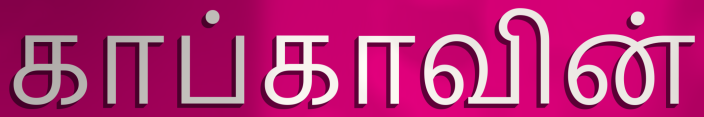
காப்காவின்